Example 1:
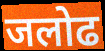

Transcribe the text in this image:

जलोढ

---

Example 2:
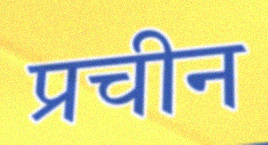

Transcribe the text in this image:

प्रचीन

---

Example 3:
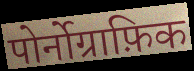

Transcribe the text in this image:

पोर्नोग्राफ़िक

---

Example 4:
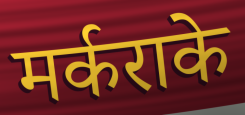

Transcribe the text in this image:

मर्कराके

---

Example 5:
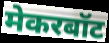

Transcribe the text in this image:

मेकरबॉट